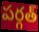
పర్గత్